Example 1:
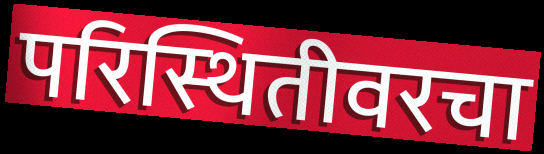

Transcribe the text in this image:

परिस्थितीवरचा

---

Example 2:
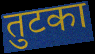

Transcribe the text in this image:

तुटका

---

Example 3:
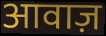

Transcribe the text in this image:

आवाज़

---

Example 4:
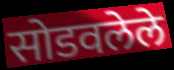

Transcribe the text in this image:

सोडवलेले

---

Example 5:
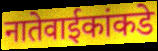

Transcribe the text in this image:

नातेवाईकांकडे